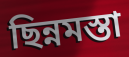
ছিন্নমস্তা